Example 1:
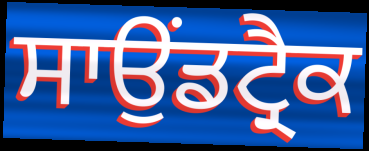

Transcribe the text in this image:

ਸਾਉਂਡਟ੍ਰੈਕ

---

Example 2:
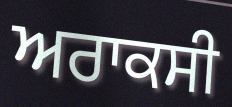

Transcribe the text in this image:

ਅਰਾਕਸੀ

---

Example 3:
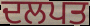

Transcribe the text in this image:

ਦਲਪਤ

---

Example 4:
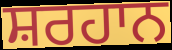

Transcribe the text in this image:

ਸ਼ਰਹਾਨ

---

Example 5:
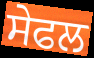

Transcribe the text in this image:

ਸੇਫਲ